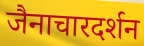
जैनाचारदर्शन